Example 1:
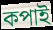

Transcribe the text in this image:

কপাই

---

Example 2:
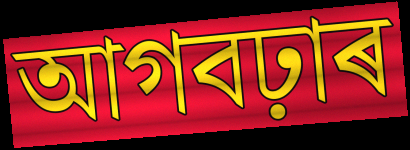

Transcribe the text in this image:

আগবঢ়াৰ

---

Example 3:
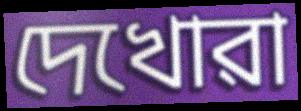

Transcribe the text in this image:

দেখোৱা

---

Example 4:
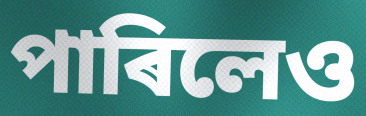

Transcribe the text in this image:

পাৰিলেও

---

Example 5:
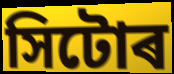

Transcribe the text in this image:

সিটোৰ